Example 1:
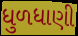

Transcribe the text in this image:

ધુળધાણી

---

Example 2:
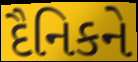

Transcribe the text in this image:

દૈનિકને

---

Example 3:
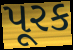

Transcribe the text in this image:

પૂરક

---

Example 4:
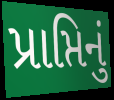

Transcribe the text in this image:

પ્રાપ્તિનું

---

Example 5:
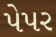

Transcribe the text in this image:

પેપર